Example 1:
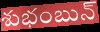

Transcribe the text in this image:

శుభంబున్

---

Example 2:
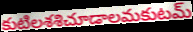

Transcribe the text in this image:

కుటిలశశిచూడాలమకుటమ్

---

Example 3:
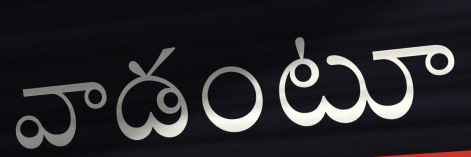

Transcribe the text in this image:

వాడంటూ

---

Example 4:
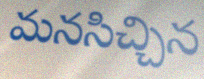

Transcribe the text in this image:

మనసిచ్చిన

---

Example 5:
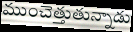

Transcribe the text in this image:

ముంచెత్తుతున్నాడు